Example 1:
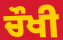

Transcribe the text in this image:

ਚੌਖੀ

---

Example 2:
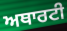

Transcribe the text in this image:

ਅਥਾਰਟੀ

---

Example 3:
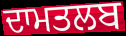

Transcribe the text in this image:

ਦਾਮਤਲਬ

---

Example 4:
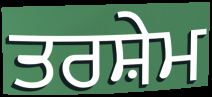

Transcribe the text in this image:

ਤਰਸ਼ੇਮ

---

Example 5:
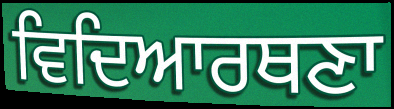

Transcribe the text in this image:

ਵਿਦਿਆਰਥਣਾ